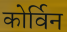
कोर्विन